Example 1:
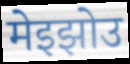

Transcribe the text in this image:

मेइझोउ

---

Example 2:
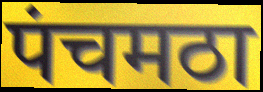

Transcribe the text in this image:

पंचमठा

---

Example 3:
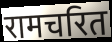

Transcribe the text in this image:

रामचरित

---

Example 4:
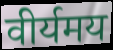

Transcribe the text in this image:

वीर्यमय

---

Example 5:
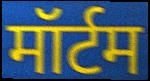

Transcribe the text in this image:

मॉर्टम